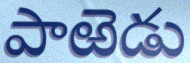
పాఱెడు